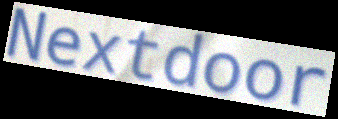
Nextdoor